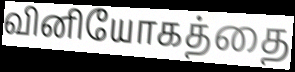
வினியோகத்தை